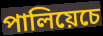
পালিয়েচে